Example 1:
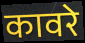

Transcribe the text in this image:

कावरे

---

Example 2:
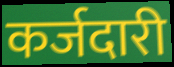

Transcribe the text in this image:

कर्जदारी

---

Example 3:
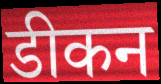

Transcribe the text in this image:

डीकन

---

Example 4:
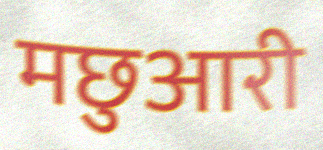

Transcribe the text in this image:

मछुआरी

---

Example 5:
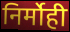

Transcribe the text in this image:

निर्मोही